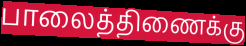
பாலைத்திணைக்கு